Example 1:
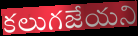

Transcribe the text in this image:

కలుగజేయని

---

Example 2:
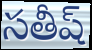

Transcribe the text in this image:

సతీష్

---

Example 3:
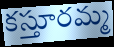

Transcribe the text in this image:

కస్తూరమ్మ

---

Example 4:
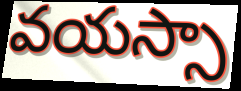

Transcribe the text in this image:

వయస్సా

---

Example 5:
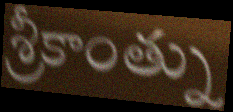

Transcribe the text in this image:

శ్రీకాంత్ను